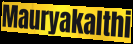
Mauryakalthi